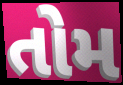
તોમ